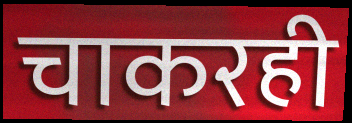
चाकरही